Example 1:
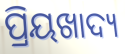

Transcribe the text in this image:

ପ୍ରିୟଖାଦ୍ୟ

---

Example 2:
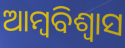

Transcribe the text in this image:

ଆମ୍ବବିଶ୍ଵାସ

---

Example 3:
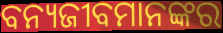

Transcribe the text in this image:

ବନ୍ୟଜୀବମାନଙ୍କର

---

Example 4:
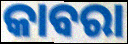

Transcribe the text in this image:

କାବରା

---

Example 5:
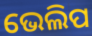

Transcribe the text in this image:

ଭେଲିପ